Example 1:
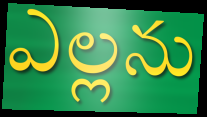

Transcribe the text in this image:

ఎల్లను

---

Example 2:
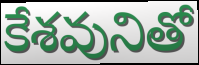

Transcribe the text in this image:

కేశవునితో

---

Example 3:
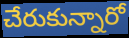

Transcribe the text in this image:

చేరుకున్నారో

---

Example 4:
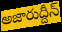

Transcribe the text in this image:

అజారుద్దీన్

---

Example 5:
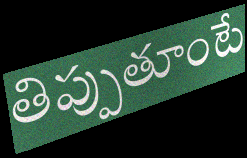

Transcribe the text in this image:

తిప్పుతూంటే